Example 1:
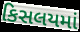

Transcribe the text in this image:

કિસલયમાં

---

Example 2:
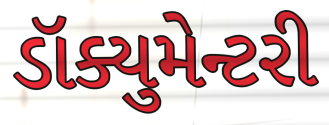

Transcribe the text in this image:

ડૉક્યુમેન્ટરી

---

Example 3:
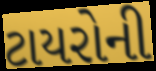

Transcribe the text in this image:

ટાયરોની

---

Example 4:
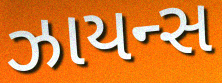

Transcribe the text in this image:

ઝાયન્સ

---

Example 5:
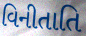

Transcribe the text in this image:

વિનીતાતિ